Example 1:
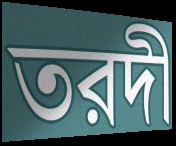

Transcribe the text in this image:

তরদী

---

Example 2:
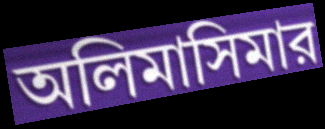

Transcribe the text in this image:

অলিমাসিমার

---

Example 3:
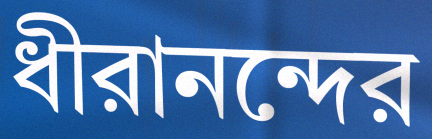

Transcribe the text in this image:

ধীরানন্দের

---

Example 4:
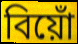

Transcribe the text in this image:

বিয়োঁ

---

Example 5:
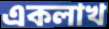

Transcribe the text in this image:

একলাখ